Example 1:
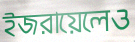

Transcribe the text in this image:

ইজরায়েলেও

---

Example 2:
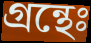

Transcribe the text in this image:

গ্রন্থেঃ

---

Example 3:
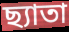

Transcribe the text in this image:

ছ্যাতা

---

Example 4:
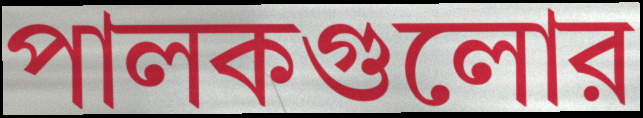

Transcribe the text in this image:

পালকগুলোর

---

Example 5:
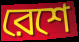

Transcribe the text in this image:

রেশে